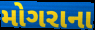
મોગરાના